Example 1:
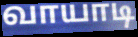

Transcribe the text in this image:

வாயாடி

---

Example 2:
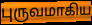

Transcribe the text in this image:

புருவமாகிய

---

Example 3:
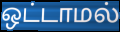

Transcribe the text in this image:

ஒட்டாமல்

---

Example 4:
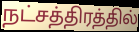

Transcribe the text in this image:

நட்சத்திரத்தில்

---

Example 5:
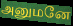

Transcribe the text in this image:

அனுமனே